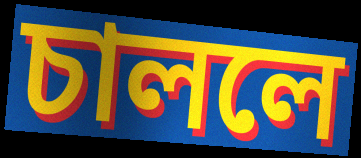
চাললে